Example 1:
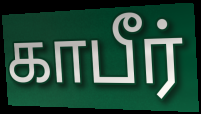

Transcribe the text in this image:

காபீர்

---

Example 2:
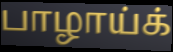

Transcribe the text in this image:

பாழாய்க்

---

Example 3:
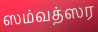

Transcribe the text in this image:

ஸம்வத்ஸர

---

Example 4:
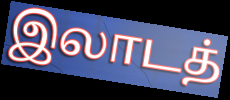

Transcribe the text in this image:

இலாடத்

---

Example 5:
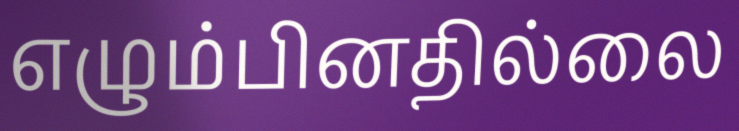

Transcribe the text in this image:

எழும்பினதில்லை